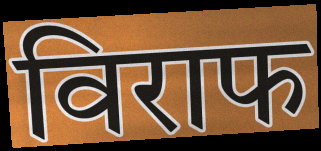
विराफ